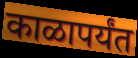
काळापर्यंत